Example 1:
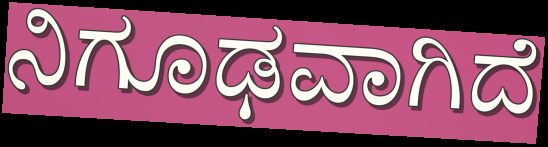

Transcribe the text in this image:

ನಿಗೂಢವಾಗಿದೆ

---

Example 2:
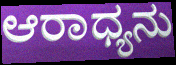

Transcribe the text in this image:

ಆರಾಧ್ಯನು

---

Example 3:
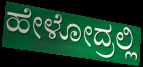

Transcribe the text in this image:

ಹೇಳೋದ್ರಲ್ಲಿ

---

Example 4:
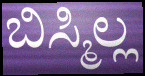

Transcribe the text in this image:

ಬಿಸ್ಮಿಲ್ಲ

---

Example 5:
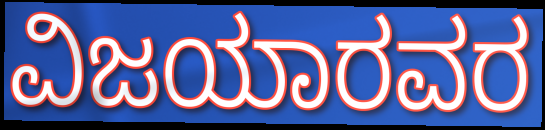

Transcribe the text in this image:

ವಿಜಯಾರವರ